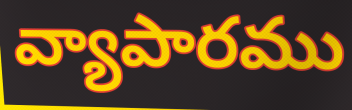
వ్యాపారము